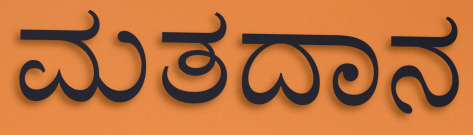
ಮತದಾನ